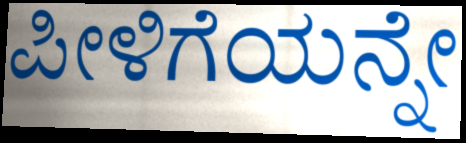
ಪೀಳಿಗೆಯನ್ನೇ